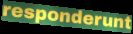
responderunt